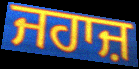
ਜਹਾਜ਼